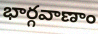
భార్గవాణాం